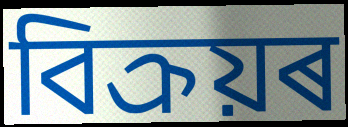
বিক্ৰয়ৰ